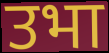
उभा